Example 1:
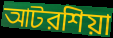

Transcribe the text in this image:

আটরশিয়া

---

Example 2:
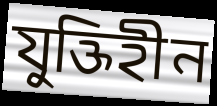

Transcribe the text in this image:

যুক্তিহীন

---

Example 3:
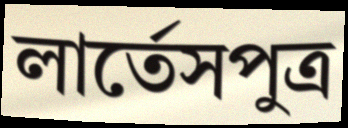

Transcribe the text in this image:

লার্তেসপুত্র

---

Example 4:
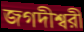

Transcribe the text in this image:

জগদীশ্বরী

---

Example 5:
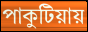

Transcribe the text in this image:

পাকুটিয়ায়